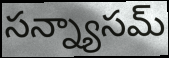
సన్న్యాసమ్